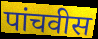
पांचवीस